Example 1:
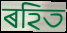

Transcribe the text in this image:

ৰহিত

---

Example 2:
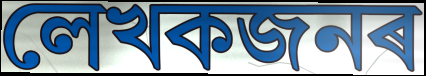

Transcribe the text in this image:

লেখকজনৰ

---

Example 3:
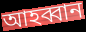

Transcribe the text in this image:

আহব্বান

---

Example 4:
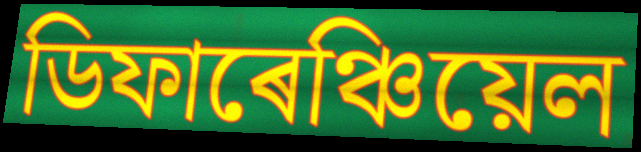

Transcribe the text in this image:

ডিফাৰেঞ্চিয়েল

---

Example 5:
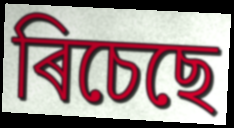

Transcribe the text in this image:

ৰিচেছে